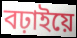
বঢ়াইয়ে